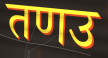
तणउ